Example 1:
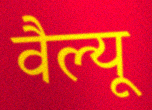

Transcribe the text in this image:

वैल्यू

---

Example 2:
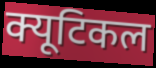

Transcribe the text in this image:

क्यूटिकल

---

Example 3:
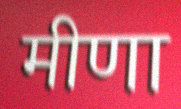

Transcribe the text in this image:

मीणा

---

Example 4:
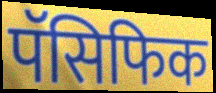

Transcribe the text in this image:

पॅसिफिक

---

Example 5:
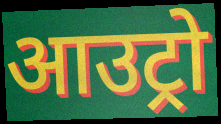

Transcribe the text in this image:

आउट्रो